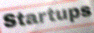
Startups